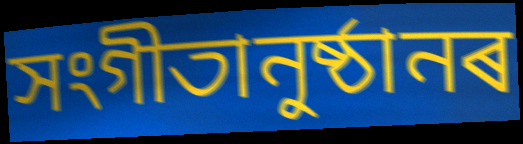
সংগীতানুষ্ঠানৰ